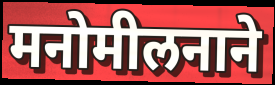
मनोमीलनाने